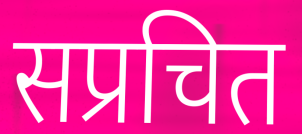
सप्रचित